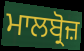
ਮਾਲਬ੍ਰੋਜ਼